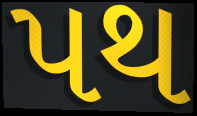
પથ